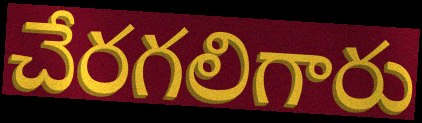
చేరగలిగారు